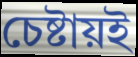
চেষ্টায়ই